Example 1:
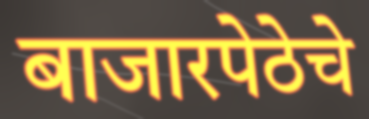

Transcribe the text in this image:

बाजारपेठेचे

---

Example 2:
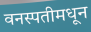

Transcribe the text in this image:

वनस्पतीमधून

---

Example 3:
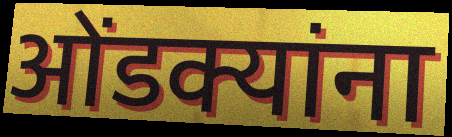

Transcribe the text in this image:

ओंडक्यांना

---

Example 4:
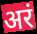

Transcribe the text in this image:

अरं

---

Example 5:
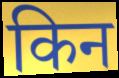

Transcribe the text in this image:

किन